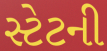
સ્ટેટની